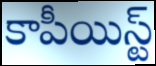
కాపీయిస్ట్